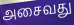
அசைவது